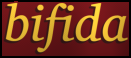
bifida